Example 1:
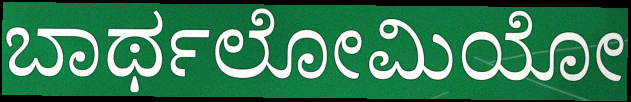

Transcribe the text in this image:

ಬಾರ್ಥಲೋಮಿಯೋ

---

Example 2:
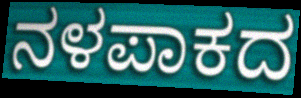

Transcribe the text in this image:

ನಳಪಾಕದ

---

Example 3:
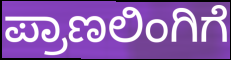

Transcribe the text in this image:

ಪ್ರಾಣಲಿಂಗಿಗೆ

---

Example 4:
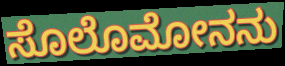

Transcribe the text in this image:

ಸೊಲೊಮೋನನು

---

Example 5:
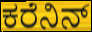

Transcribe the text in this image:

ಕರೆನಿನ್